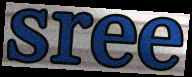
sree